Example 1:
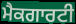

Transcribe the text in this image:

ਮੈਕਗਾਰਟੀ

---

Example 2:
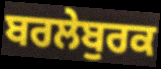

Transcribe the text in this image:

ਬਰਲੇਬੁਰਕ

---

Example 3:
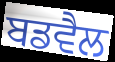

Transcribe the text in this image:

ਬਡਵੈਲ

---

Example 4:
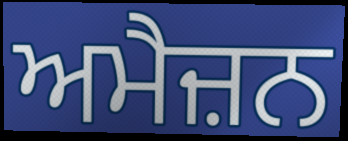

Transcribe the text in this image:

ਅਮੈਜ਼ਨ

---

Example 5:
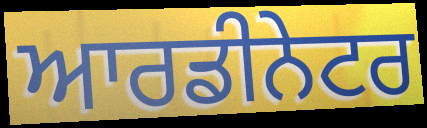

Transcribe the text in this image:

ਆਰਡੀਨੇਟਰ